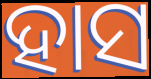
ହାସ